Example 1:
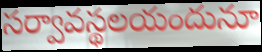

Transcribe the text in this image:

సర్వావస్థలయందునూ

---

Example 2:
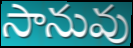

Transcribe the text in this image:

సానువు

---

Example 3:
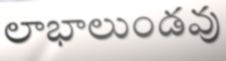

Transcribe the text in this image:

లాభాలుండవు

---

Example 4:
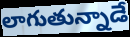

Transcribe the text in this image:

లాగుతున్నాడే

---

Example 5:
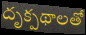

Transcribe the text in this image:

దృక్పథాలతో